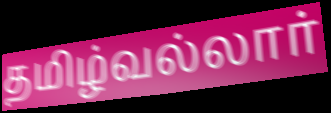
தமிழ்வல்லார்